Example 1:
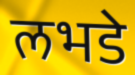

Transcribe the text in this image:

लभडे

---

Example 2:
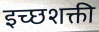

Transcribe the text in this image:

इच्छशक्ती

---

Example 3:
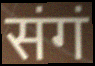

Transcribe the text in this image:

संगं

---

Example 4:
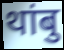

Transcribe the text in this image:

थांबु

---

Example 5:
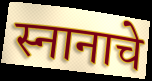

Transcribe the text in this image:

स्नानाचे